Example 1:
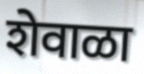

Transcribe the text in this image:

शेवाळा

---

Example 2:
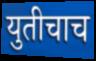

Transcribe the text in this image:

युतीचाच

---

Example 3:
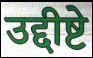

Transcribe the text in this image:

उद्दीष्टे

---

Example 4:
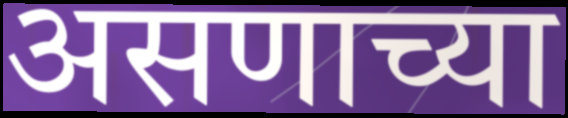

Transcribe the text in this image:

असणाच्या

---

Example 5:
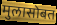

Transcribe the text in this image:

मुलासोबत